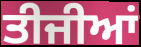
ਤੀਜੀਆਂ